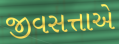
જીવસત્તાએ